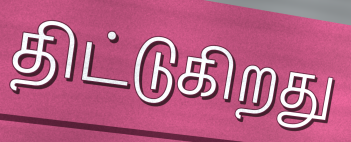
திட்டுகிறது